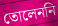
তোলেননি